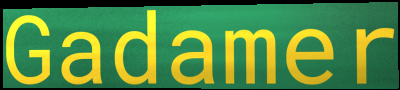
Gadamer